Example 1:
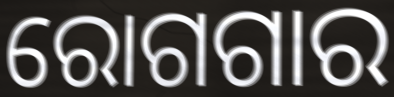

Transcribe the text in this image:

ରୋଗଗାର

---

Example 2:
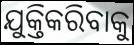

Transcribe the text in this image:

ଯୁକ୍ତିକରିବାକୁ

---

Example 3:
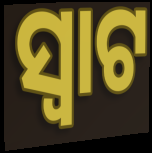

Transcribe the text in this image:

ସ୍ୱାଟ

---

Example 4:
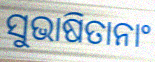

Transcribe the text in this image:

ସୁଭାଷିତାନାଂ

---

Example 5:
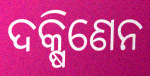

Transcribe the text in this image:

ଦକ୍ଷିଣେନ